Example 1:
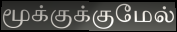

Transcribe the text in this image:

மூக்குக்குமேல்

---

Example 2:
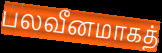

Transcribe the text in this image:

பலவீனமாகத்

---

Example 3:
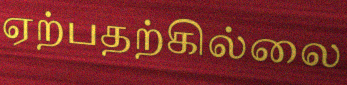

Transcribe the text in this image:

ஏற்பதற்கில்லை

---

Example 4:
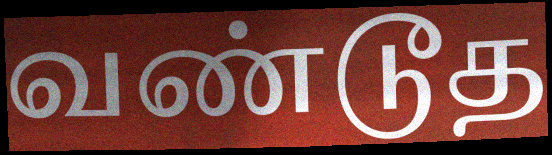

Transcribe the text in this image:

வண்டூத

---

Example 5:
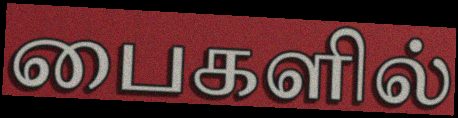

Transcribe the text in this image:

பைகளில்